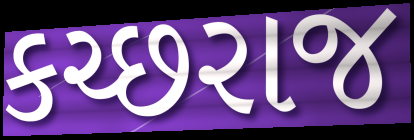
કચ્છરાજ